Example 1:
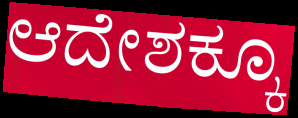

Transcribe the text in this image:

ಆದೇಶಕ್ಕೂ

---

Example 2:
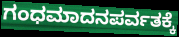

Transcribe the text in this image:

ಗಂಧಮಾದನಪರ್ವತಕ್ಕೆ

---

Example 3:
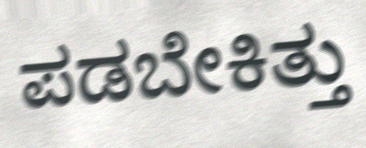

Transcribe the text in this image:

ಪಡಬೇಕಿತ್ತು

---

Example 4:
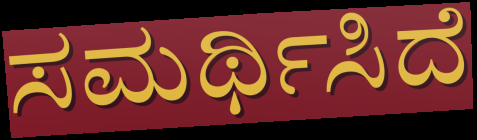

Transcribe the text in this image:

ಸಮರ್ಥಿಸಿದೆ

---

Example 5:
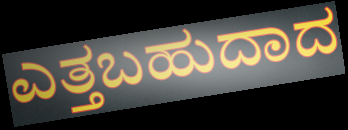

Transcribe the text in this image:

ಎತ್ತಬಹುದಾದ